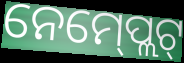
ନେମ୍‍ପ୍ଲେଟ୍